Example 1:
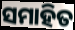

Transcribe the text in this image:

ସମାହିତ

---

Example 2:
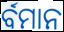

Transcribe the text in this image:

ର୍ବମାନ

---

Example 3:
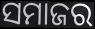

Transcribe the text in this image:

ସମାଜର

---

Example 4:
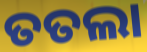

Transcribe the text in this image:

ତତଲା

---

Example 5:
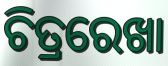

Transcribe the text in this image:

ଚିତ୍ରରେଖା